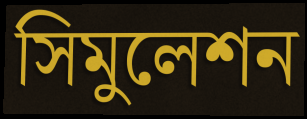
সিমুলেশন